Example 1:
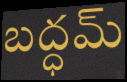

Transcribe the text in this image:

బద్ధమ్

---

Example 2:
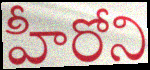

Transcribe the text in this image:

హీరోని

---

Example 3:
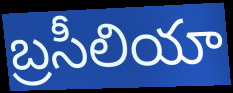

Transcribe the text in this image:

బ్రసీలియా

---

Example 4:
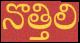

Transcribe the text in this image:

నొత్తిలి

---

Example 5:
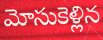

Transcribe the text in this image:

మోసుకెళ్లిన